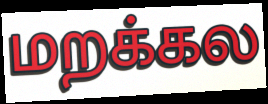
மறக்கல